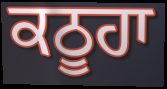
ਕਠੂਹਾ